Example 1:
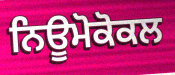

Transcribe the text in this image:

ਨਿਊਮੋਕੋਕਲ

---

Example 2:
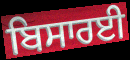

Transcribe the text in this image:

ਬਿਸਾਰਈ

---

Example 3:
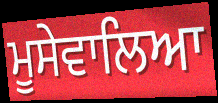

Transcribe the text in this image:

ਮੂਸੇਵਾਲਿਆ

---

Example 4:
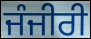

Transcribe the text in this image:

ਜੰਜੀਰੀ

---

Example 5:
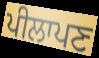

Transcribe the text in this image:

ਪੀਲਾਪਣ